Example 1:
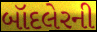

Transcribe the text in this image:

બૉદલેરની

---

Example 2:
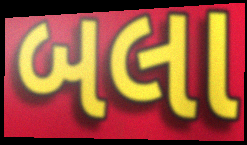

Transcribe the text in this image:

બલા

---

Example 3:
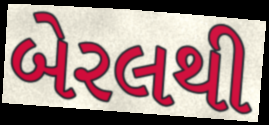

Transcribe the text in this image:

બેરલથી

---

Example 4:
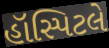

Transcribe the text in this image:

હૉસ્પિટલે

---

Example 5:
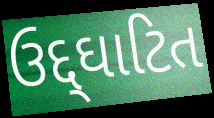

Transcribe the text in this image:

ઉદ્દ્ઘાટિત